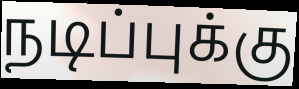
நடிப்புக்கு